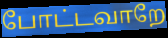
போட்டவாறே